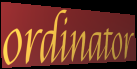
ordinator